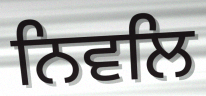
ਨਿਵਲਿ